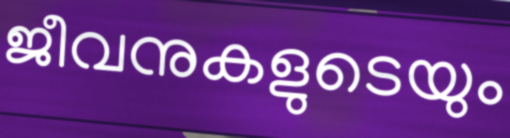
ജീവനുകളുടെയും